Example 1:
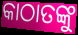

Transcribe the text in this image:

କାଠାତଙ୍କୁ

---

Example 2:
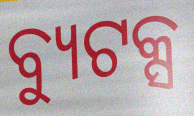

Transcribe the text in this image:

ବ୍ୟୁଟକ୍ସ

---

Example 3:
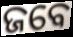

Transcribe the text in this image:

ଜବେ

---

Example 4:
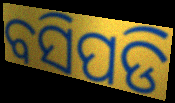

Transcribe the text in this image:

ବସିପଡି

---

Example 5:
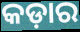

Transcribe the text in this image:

କଡ଼ାର